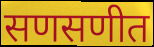
सणसणीत